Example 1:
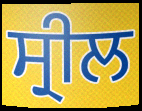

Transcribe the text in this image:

ਸ੍ਰੀਲ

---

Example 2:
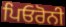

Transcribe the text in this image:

ਪਿਓਰੋਨੀ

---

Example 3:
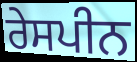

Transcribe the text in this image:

ਰੇਸਪੀਨ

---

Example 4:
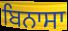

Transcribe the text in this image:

ਬਿਨਾਸਾ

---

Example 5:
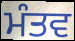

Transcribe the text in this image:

ਮੰਤਵ